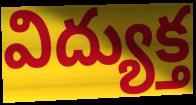
విద్యుక్త